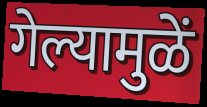
गेल्यामुळें